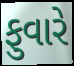
ફુવારે